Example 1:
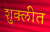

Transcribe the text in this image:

शुक्लीत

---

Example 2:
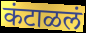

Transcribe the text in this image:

कंटाळलं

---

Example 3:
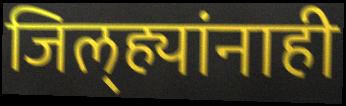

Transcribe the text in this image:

जिल्ह्यांनाही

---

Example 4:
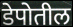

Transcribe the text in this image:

डेपोतील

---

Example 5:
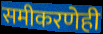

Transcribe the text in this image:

समीकरणेही